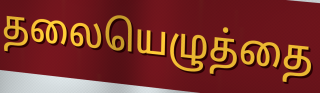
தலையெழுத்தை